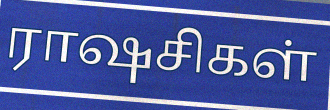
ராஷசிகள்